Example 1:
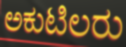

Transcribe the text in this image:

ಅಕುಟಿಲರು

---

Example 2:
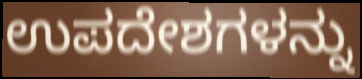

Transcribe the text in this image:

ಉಪದೇಶಗಳನ್ನು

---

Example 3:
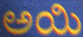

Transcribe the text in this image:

ಅಯಿ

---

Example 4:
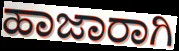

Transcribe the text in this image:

ಹಾಜಾರಾಗಿ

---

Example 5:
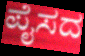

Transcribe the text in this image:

ಪೈಸದ